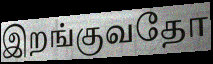
இறங்குவதோ